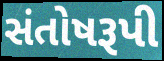
સંતોષરૂપી